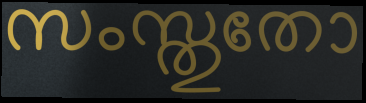
സംസ്തുതോ